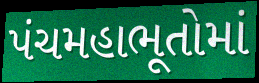
પંચમહાભૂતોમાં